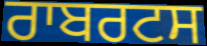
ਰਾਬਰਟਸ